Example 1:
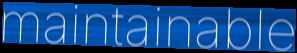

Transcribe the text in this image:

maintainable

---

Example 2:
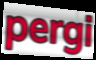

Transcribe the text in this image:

pergi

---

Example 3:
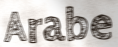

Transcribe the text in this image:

Arabe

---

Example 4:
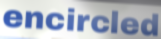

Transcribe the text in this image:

encircled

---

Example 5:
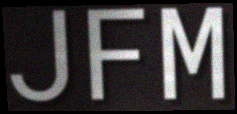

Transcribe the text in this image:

JFM